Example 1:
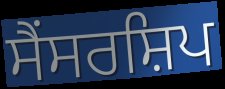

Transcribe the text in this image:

ਸੈਂਸਰਸ਼ਿਪ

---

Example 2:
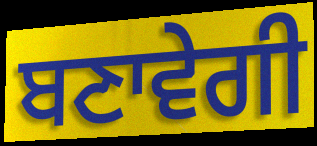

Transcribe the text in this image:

ਬਣਾਵੇਗੀ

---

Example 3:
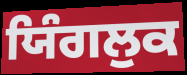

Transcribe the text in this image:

ਯਿੰਗਲੁਕ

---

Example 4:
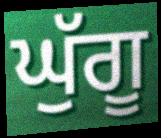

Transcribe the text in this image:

ਘੁੱਗੂ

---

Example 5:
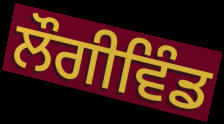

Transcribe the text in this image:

ਲੌਗੀਵਿੰਡ